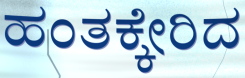
ಹಂತಕ್ಕೇರಿದ